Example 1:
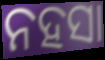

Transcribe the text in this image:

ନହସା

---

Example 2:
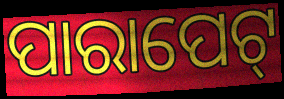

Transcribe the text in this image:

ପାରାପେଟ୍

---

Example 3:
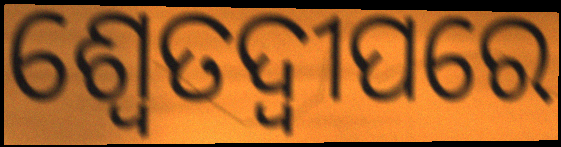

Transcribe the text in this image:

ଶ୍ୱେତଦ୍ୱୀପରେ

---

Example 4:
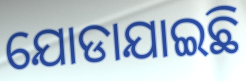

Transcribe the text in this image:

ଯୋଡାଯାଇଛି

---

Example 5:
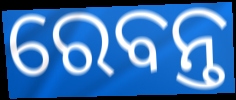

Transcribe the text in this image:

ରେବନ୍ତ